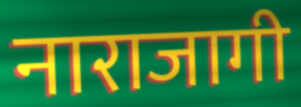
नाराजागी